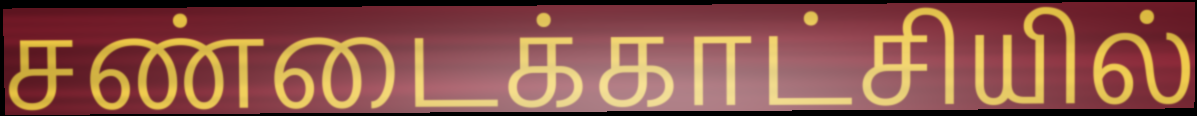
சண்டைக்காட்சியில்